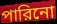
পারিনো